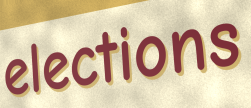
elections